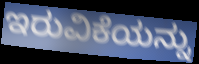
ಇರುವಿಕೆಯನ್ನು